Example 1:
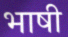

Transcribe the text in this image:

भाषी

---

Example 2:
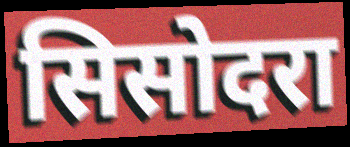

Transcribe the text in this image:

सिसोदरा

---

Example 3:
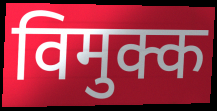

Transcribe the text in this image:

विमुक्क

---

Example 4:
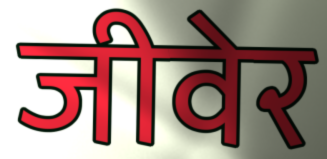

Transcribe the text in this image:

जीवेर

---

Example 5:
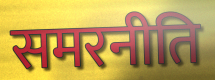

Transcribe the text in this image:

समरनीति